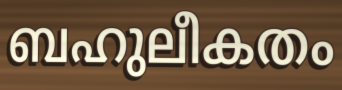
ബഹുലീകതം